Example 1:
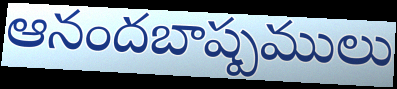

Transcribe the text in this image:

ఆనందబాష్పములు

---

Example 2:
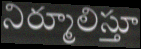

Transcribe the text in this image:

నిర్మూలిస్తూ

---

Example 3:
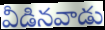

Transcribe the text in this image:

వీడినవాడు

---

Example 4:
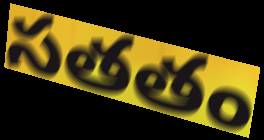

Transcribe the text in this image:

సతతం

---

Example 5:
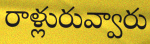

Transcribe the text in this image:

రాళ్లురువ్వారు